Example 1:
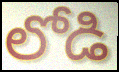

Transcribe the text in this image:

లోడి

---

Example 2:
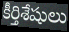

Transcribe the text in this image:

కీర్తిశేషులు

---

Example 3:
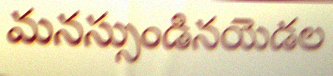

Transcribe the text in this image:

మనస్సుండినయెడల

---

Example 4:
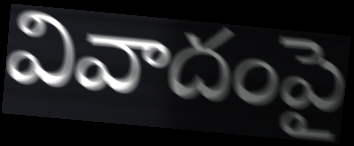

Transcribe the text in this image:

వివాదంపై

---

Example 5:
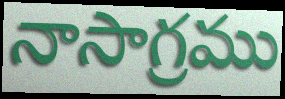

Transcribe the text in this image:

నాసాగ్రము